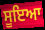
ਸੂਇਆ